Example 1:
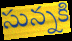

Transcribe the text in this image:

సున్నకి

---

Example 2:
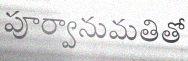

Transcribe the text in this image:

పూర్వానుమతితో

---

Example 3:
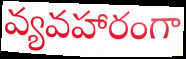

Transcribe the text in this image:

వ్యవహారంగా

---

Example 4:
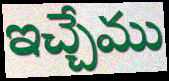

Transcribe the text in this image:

ఇచ్చేము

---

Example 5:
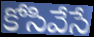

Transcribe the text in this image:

కోసివేసే